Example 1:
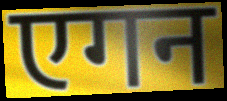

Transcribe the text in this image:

एगन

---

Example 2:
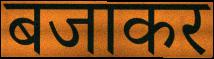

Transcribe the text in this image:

बजाकर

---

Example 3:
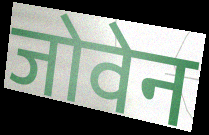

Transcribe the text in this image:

जोवेन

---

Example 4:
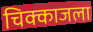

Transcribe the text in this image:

चिक्काजला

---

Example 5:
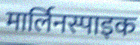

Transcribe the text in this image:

मार्लिनस्पाइक